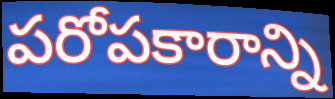
పరోపకారాన్ని